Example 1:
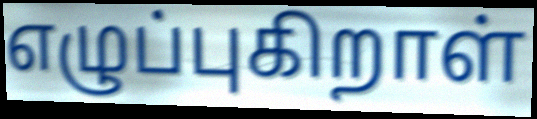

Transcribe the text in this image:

எழுப்புகிறாள்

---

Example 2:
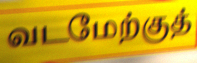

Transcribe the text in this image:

வடமேற்குத்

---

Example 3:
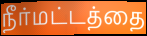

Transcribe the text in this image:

நீர்மட்டத்தை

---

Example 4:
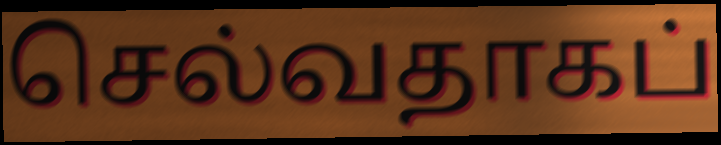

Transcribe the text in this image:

செல்வதாகப்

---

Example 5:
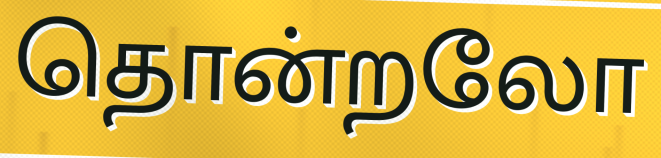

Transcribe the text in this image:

தொன்றலோ